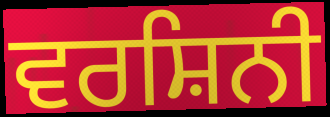
ਵਰਸ਼ਿਨੀ